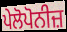
ਪੇਲੋਪੋਨੀਜ਼